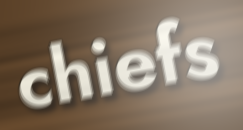
chiefs